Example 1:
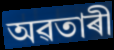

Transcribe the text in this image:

অৱতাৰী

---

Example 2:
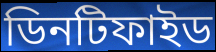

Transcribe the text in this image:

ডিনটিফাইড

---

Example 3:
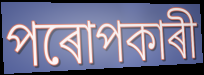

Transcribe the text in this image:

পৰোপকাৰী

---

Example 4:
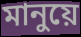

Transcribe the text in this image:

মানুয়ে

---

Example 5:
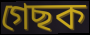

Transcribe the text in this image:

গেছক